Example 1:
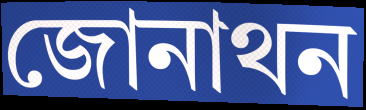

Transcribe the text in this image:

জোনাথন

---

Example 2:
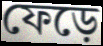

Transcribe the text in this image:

ফেড়ে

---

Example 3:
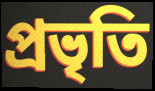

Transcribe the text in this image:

প্রভৃতি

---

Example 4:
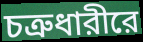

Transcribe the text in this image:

চত্রুধারীরে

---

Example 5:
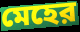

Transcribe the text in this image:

মেহের